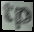
tp